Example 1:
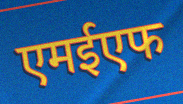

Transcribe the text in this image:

एमईएफ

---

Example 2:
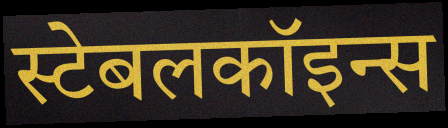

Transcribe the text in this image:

स्टेबलकॉइन्स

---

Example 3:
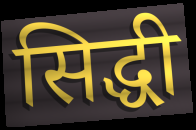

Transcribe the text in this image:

सिद्धी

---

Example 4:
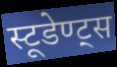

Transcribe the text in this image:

स्टूडेण्ट्स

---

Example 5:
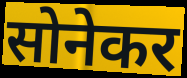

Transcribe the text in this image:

सोनेकर